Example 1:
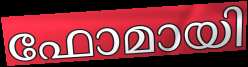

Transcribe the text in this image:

ഫോമായി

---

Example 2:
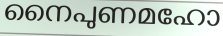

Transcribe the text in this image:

നൈപുണമഹോ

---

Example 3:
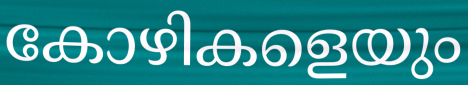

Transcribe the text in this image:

കോഴികളെയും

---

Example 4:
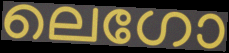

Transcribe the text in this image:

ലെഗോ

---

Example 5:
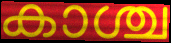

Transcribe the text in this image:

കാശ്ച